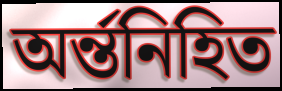
অর্ন্তনিহিত